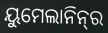
ୟୁମେଲାନିନ୍‌ର